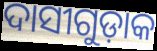
ଦାସୀଗୁଡ଼ାକ